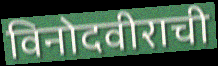
विनोदवीराची